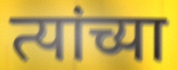
त्यांच्या